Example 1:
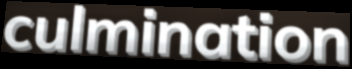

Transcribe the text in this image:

culmination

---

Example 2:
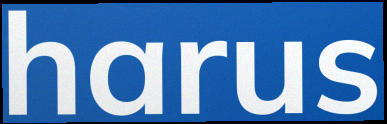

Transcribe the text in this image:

harus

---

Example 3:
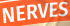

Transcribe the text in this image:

NERVES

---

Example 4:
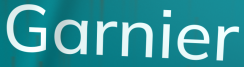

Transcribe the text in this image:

Garnier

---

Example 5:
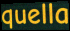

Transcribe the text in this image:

quella